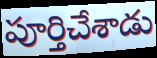
పూర్తిచేశాడు